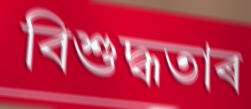
বিশুদ্ধতাৰ